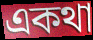
একথা